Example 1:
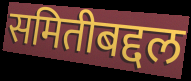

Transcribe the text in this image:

समितीबद्दल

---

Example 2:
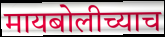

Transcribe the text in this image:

मायबोलीच्याच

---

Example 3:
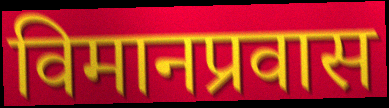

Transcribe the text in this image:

विमानप्रवास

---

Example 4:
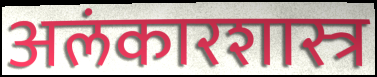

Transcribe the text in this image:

अलंकारशास्त्र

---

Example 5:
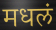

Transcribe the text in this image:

मधलं